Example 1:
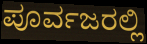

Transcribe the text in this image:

ಪೂರ್ವಜರಲ್ಲಿ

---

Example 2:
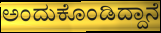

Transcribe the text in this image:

ಅಂದುಕೊಂಡಿದ್ದಾನೆ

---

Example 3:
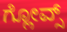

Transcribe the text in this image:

ಗ್ಲೋವ್ಸ್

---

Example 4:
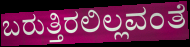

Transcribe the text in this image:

ಬರುತ್ತಿರಲಿಲ್ಲವಂತೆ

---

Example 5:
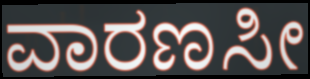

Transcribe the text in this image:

ವಾರಣಸೀ